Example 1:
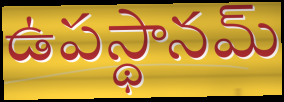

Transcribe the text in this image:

ఉపస్థానమ్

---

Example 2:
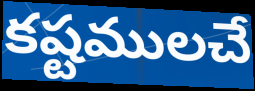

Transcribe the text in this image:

కష్టములచే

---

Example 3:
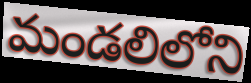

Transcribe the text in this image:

మండలిలోని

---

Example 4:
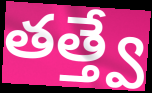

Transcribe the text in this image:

తత్త్వే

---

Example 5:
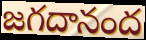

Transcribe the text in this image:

జగదానంద